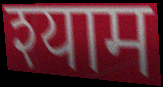
श्याम